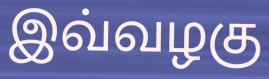
இவ்வழகு